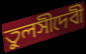
তুলসীদেবী